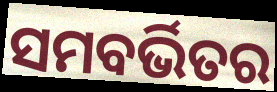
ସମବର୍ଭିତର